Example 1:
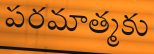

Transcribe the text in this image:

పరమాత్మకు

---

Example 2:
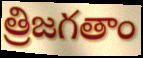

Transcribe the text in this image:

త్రిజగతాం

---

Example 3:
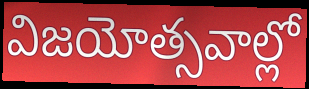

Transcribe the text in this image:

విజయోత్సవాల్లో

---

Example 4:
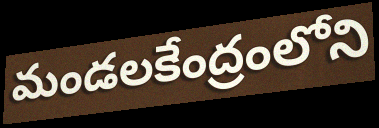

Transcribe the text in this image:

మండలకేంద్రంలోని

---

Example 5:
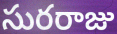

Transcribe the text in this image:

సురరాజు